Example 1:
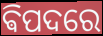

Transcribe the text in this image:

ଵିପଦରେ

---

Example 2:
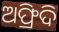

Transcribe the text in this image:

ଅଫ୍ରିଦି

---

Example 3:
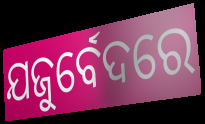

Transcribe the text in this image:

ଯଜୁର୍ବେଦରେ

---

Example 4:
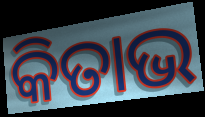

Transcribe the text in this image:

କିତାଭ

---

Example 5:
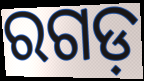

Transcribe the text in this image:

ରଗଡ଼